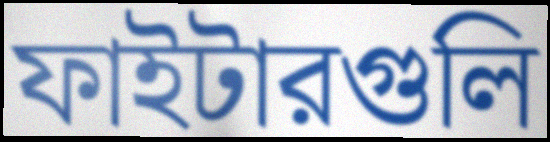
ফাইটারগুলি